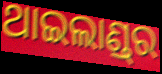
ଥାଇଲାଣ୍ଡ୍‌ର